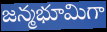
జన్మభూమిగా